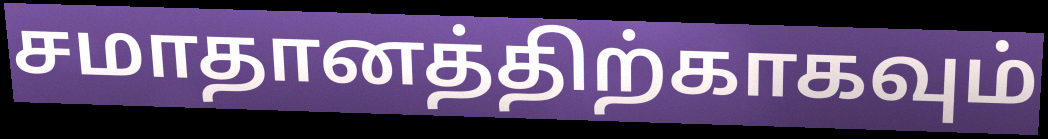
சமாதானத்திற்காகவும்